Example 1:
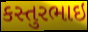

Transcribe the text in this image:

કસ્તુરભાઇ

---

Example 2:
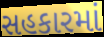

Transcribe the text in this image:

સહકારમાં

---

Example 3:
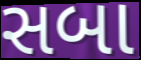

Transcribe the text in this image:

સબા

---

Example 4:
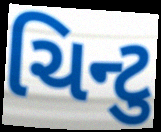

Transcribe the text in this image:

ચિન્ટુ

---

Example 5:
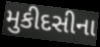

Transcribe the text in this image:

મુકીદસીના